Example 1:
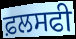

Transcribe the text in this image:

ਫ਼ਲਸਫੀ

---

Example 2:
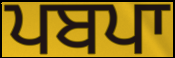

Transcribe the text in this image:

ਪਬਪਾ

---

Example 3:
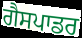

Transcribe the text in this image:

ਗੈਸਪਾਡਰ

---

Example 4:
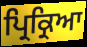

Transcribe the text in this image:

ਪ੍ਰਿਕ੍ਰਿਆ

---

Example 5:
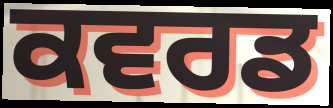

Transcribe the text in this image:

ਕਵਰਡ